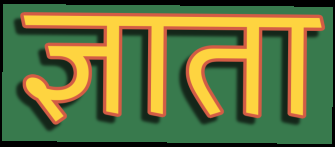
ज्ञाता